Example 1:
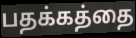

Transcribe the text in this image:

பதக்கத்தை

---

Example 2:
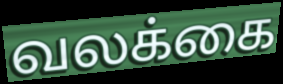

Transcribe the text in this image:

வலக்கை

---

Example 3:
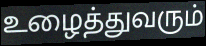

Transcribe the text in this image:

உழைத்துவரும்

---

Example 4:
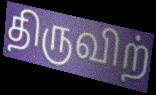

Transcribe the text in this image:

திருவிற்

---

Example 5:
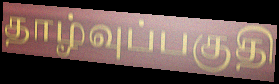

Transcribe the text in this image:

தாழ்வுப்பகுதி